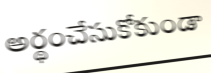
అర్థంచేసుకోకుండా